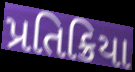
પ્રતિક્રિયા